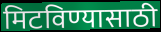
मिटविण्यासाठी